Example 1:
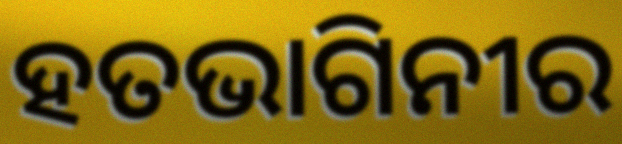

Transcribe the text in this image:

ହତଭାଗିନୀର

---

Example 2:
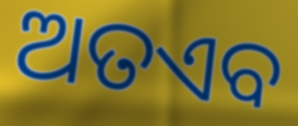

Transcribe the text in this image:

ଅତଏବ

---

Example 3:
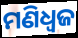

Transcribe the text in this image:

ମଣିଧ୍ୱଜ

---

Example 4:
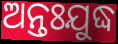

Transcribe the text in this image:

ଅନ୍ତଃଯୁଦ୍ଧ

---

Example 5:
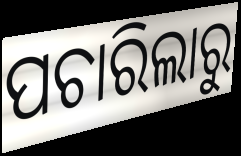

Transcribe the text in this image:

ପଚାରିଲାରୁ